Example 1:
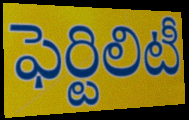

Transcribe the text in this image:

ఫెర్టిలిటీ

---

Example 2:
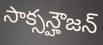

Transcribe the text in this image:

సాక్సన్హౌజన్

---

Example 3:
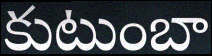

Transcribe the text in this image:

కుటుంబా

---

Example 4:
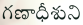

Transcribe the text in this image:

గణాధీశుని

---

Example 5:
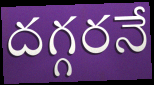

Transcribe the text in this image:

దగ్గరనే